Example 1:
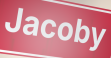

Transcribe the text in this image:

Jacoby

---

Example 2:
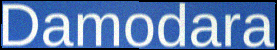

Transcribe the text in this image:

Damodara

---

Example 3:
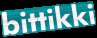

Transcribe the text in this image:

bittikki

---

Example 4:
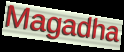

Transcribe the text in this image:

Magadha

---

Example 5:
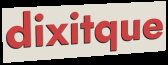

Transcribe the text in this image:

dixitque